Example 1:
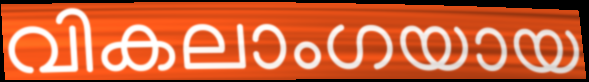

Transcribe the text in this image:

വികലാംഗയായ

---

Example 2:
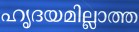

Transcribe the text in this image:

ഹൃദയമില്ലാത്ത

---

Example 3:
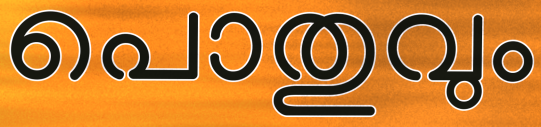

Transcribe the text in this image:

പൊതുവും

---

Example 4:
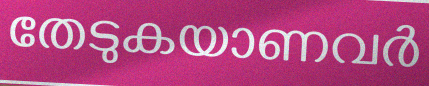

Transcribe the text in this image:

തേടുകയാണവർ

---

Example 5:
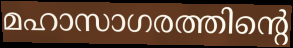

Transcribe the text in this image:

മഹാസാഗരത്തിന്റെ